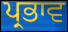
ਪ੍ਰਭਾਵ